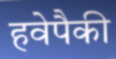
हवेपैकी